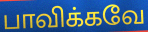
பாவிக்கவே